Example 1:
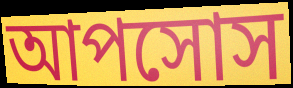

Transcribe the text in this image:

আপসোস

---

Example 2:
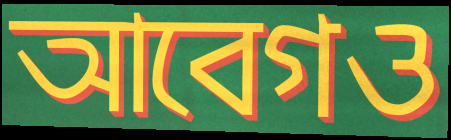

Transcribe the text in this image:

আবেগও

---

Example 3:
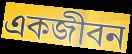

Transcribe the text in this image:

একজীবন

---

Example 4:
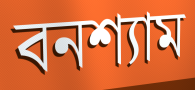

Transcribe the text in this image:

বনশ্যাম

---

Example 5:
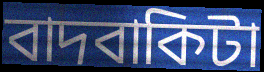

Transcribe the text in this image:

বাদবাকিটা